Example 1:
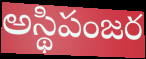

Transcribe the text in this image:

అస్థిపంజర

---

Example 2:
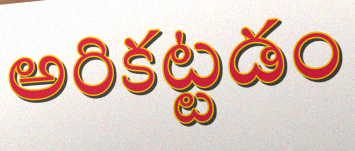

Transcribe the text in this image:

అరికట్టడం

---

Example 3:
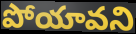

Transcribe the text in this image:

పోయావని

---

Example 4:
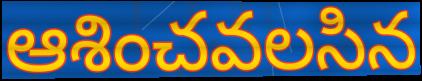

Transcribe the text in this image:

ఆశించవలసిన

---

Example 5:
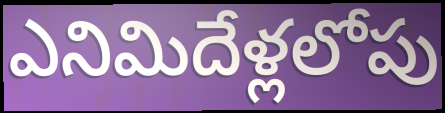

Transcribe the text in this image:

ఎనిమిదేళ్లలోపు